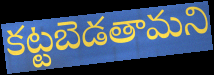
కట్టబెడతామని